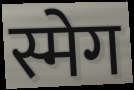
स्मेग